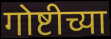
गोष्टीच्या